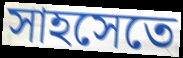
সাহসেতে